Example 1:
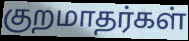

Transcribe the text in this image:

குறமாதர்கள்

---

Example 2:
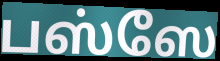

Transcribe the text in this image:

பஸ்ஸே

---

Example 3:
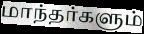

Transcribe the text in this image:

மாந்தர்களும்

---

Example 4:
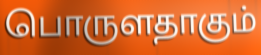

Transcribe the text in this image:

பொருளதாகும்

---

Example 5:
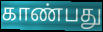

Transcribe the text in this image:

காண்பது